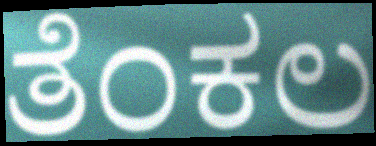
ತೆಂಕಲ